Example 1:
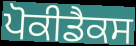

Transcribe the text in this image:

ਪੋਕੀਡੈਕਸ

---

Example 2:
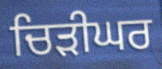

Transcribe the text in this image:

ਚਿੜੀਘਰ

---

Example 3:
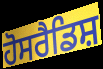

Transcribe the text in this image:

ਹੋਸਰੈਡਿਸ਼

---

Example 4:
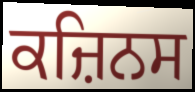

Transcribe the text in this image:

ਕਜ਼ਿਨਸ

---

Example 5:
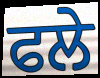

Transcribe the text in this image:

ਫਲੇ